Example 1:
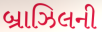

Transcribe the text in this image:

બ્રાઝિલની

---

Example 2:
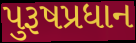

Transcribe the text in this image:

પુરૂષપ્રધાન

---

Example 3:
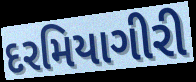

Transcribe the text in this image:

દરમિયાગીરી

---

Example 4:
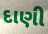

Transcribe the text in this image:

દાણી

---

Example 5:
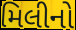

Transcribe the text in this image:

મિલીનો